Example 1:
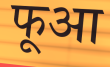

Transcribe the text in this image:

फूआ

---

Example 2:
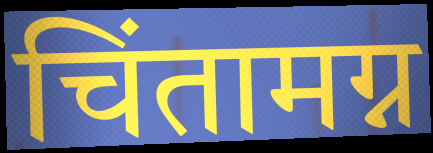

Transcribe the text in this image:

चिंतामग्न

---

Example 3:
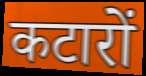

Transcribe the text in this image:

कटारों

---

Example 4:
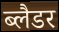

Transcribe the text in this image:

ब्लैडर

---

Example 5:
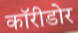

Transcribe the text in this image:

कॉरीडोर